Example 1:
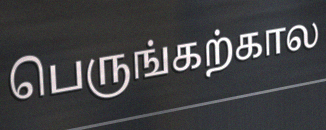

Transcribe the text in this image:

பெருங்கற்கால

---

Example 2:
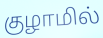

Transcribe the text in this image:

குழாமில்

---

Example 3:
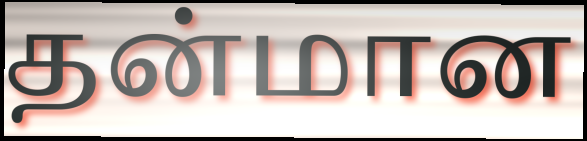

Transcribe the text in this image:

தன்மான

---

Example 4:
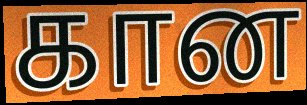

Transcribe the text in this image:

கான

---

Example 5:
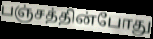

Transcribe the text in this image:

பஞ்சத்தின்போது